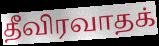
தீவிரவாதக்